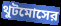
থুটমোসের